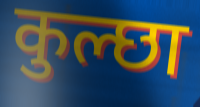
कुल्छा